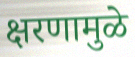
क्षरणामुळे